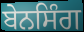
ਬੇਨਸਿੰਗ